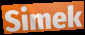
Simek